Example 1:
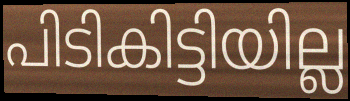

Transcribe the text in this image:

പിടികിട്ടിയില്ല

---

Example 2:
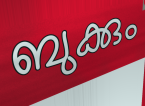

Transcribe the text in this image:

ബുക്കും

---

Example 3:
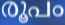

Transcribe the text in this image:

രൂപം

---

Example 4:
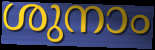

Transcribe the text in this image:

ശുനാം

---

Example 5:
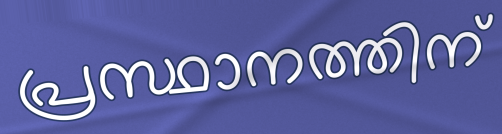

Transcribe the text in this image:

പ്രസ്ഥാനത്തിന്